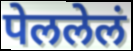
पेललेलं